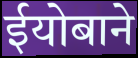
ईयोबाने